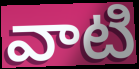
వాటి